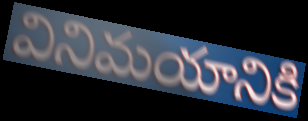
వినిమయానికి